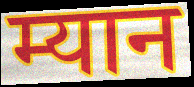
म्यान